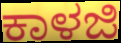
ಕಾಳಜಿ